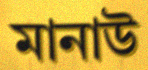
মানাউ